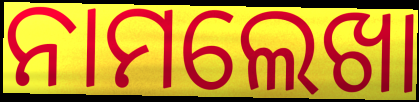
ନାମଲେଖା